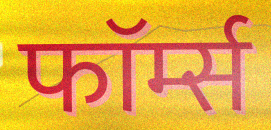
फॉर्म्स